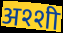
अश्शी